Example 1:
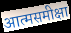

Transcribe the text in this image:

आत्मसमीक्षा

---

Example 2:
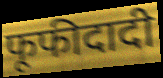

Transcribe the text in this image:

फूफीदादी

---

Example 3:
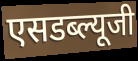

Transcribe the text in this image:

एसडब्ल्यूजी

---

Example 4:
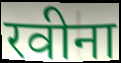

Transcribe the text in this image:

रवीना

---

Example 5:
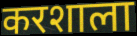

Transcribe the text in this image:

करशाला